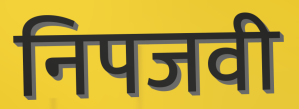
निपजवी